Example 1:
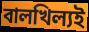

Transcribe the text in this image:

বালখিল্যই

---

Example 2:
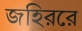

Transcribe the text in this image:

জহিররে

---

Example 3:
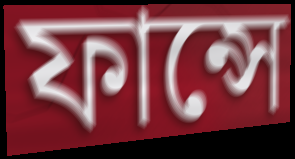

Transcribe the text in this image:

ফান্সে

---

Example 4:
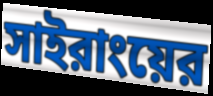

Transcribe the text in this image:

সাইরাংয়ের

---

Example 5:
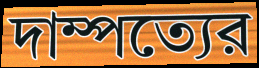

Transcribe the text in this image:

দাম্পত্যের